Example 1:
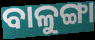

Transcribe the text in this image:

ବାଳୁଙ୍ଗା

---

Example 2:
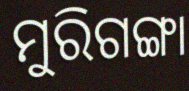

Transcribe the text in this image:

ମୁରିଗଙ୍ଗା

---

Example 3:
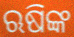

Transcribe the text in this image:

ଋଷିଙ୍କ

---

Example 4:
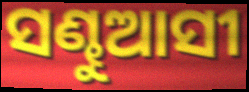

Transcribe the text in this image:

ସଣ୍ଢୁଆସୀ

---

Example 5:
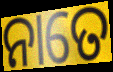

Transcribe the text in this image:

ନାତେ